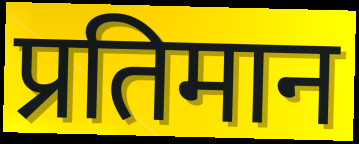
प्रतिमान